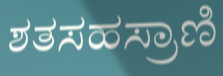
ಶತಸಹಸ್ರಾಣಿ